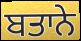
ਬਤਾਨੇ